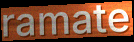
ramate